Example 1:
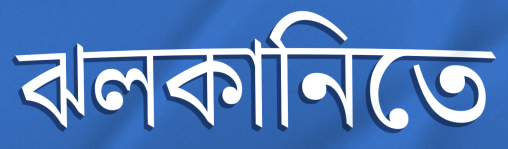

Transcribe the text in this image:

ঝলকানিতে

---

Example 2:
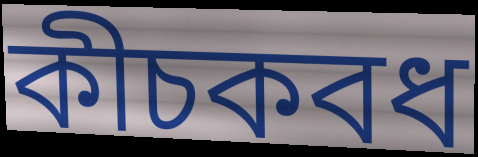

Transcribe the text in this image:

কীচকবধ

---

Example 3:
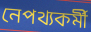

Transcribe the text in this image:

নেপথ্যকর্মী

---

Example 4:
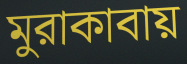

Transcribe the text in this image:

মুরাকাবায়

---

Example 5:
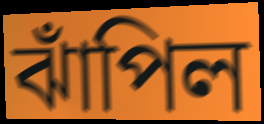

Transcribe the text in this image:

ঝাঁপিল